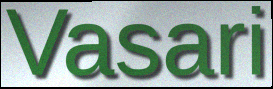
Vasari